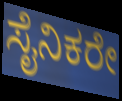
ಸೈನಿಕರೇ